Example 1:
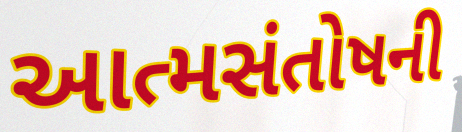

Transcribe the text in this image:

આત્મસંતોષની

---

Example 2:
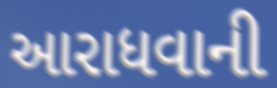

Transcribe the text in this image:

આરાધવાની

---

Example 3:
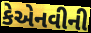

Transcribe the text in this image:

કેએનવીની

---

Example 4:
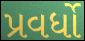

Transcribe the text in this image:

પ્રવર્ધો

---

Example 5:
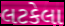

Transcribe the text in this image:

લટકેલા